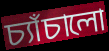
চ্যাঁচালো